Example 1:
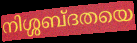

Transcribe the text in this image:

നിശ്ശബ്ദതയെ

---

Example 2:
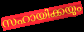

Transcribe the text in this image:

സഹായിക്കയും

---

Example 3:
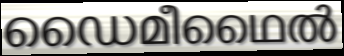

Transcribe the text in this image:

ഡൈമീഥൈൽ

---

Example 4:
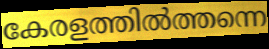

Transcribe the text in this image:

കേരളത്തിൽത്തന്നെ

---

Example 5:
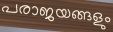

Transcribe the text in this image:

പരാജയങ്ങളും